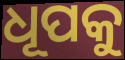
ଧୂପକୁ